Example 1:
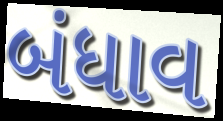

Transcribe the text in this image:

બંધાવ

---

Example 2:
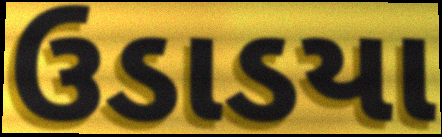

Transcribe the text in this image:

ઉડાડયા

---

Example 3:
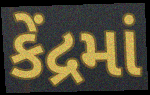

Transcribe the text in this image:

કેંદ્રમાં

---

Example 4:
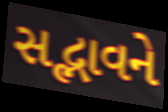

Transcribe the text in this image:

સદ્ભાવને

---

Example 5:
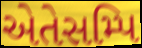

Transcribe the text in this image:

એતેસમ્પિ